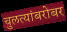
चुलत्यांबरोबर